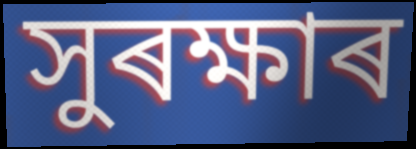
সুৰক্ষাৰ